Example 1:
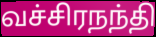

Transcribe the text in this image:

வச்சிரநந்தி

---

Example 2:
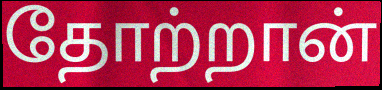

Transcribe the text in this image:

தோற்றான்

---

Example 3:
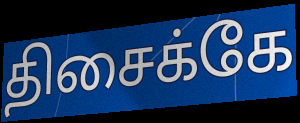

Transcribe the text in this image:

திசைக்கே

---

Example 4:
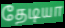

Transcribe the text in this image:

தேடியா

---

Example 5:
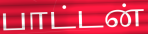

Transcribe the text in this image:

பாட்டன்